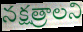
నక్షత్రాలని